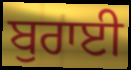
ਬੁਰਾਈ